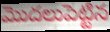
మొదలుపెట్టిన